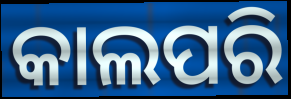
କାଲପରି